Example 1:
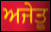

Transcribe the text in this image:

ਅਜੇਤੂ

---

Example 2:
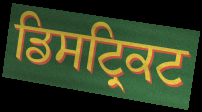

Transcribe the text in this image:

ਡਿਸਟ੍ਰਿਕਟ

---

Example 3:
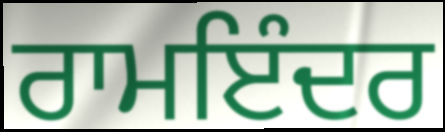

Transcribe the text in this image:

ਰਾਮਇੰਦਰ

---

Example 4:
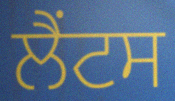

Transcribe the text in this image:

ਲੈਂਟਸ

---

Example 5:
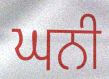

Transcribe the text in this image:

ਘਨੀ